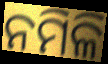
ନମିଳି